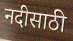
नदीसाठी